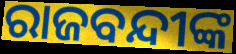
ରାଜବନ୍ଦୀଙ୍କ